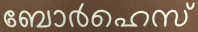
ബോർഹെസ്